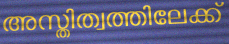
അസ്തിത്വത്തിലേക്ക്